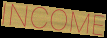
INCOME